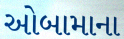
ઓબામાના